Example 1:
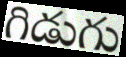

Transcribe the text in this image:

గిడుగు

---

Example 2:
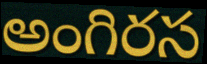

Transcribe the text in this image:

అంగిరస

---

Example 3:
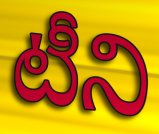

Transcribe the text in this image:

టీని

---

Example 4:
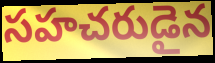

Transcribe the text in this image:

సహచరుడైన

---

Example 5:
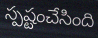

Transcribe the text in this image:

స్పష్టంచేసింది